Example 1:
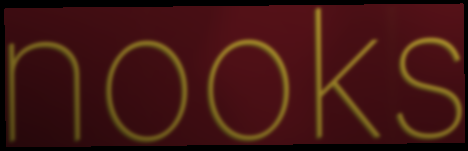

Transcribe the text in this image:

nooks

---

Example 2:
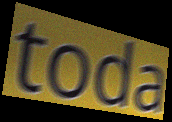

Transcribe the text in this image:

toda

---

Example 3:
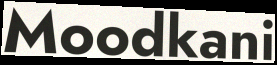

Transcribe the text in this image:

Moodkani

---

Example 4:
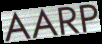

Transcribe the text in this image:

AARP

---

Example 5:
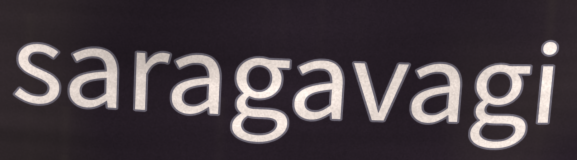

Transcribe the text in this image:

saragavagi